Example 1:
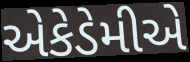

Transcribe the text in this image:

એકેડેમીએ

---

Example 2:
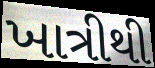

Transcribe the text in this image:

ખાત્રીથી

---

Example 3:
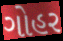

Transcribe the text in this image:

ગોહર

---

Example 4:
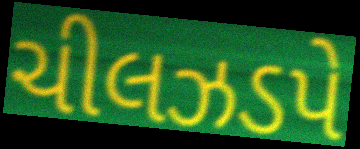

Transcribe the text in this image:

ચીલઝડપે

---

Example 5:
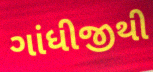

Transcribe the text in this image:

ગાંધીજીથી